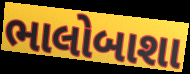
ભાલોબાશા